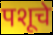
पशूचे